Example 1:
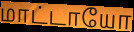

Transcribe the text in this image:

மாட்டாயோ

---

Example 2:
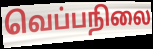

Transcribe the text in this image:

வெப்பநிலை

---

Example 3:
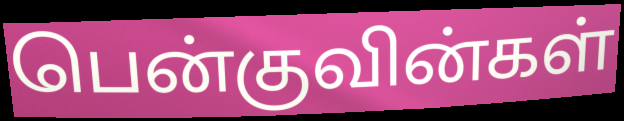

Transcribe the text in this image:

பென்குவின்கள்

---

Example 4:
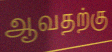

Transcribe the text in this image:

ஆவதற்கு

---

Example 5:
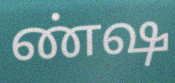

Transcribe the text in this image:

ண்ஷ